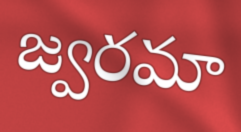
జ్వరమా